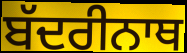
ਬੱਦਰੀਨਾਥ